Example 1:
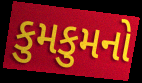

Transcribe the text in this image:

કુમકુમનો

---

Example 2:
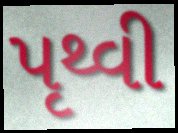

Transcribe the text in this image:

પૃથ્વી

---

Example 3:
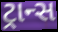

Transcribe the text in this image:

ટ્રાન્સ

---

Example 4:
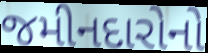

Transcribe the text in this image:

જમીનદારોનો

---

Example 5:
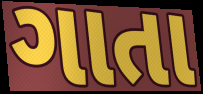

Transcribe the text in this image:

ગાતા